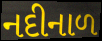
નદીનાળ